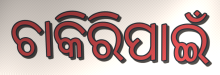
ଚାକିରିପାଇଁ